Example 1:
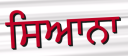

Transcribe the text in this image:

ਸਿਆਨਾ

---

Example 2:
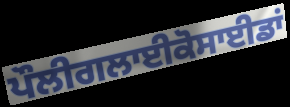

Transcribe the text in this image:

ਪੌਲੀਗਲਾਈਕੋਸਾਈਡਾਂ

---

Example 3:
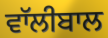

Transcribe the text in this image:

ਵਾੱਲੀਬਾਲ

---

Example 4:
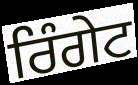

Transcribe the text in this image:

ਰਿੰਗੇਟ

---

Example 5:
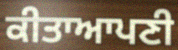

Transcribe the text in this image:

ਕੀਤਾਆਪਣੀ